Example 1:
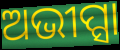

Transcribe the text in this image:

ଅଭୀପ୍ସା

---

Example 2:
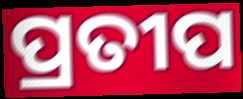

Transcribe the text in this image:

ପ୍ରତୀପ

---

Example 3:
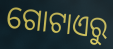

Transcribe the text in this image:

ଗୋଟାଏରୁ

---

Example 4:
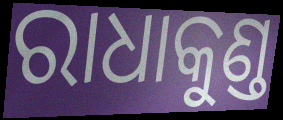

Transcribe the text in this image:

ରାଧାକୁଣ୍ଡ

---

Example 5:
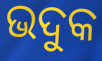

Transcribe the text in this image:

ଭଦୁକ